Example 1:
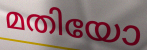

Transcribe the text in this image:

മതിയോ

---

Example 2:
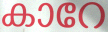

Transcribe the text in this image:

കാറേ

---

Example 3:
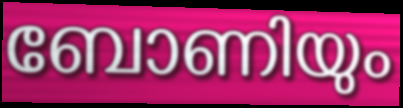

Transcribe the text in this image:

ബോണിയും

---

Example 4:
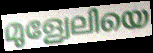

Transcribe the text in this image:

മുള്വേലിയെ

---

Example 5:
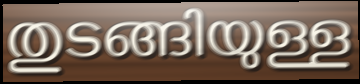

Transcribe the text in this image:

തുടങ്ങിയുള്ള